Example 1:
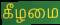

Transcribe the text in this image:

கீழமை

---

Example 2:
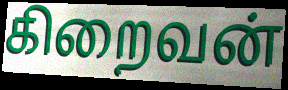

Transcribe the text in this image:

கிறைவன்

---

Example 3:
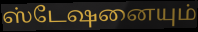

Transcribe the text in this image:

ஸ்டேஷனையும்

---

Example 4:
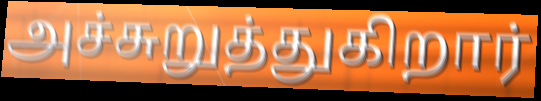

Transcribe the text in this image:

அச்சுறுத்துகிறார்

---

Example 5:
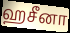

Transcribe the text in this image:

ஹசீனா